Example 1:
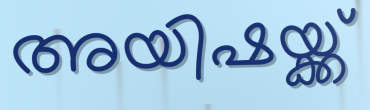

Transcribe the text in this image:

അയിഷയ്ക്ക്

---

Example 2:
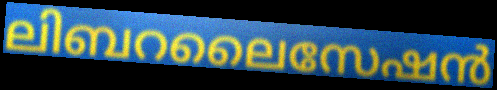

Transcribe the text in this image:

ലിബറലൈസേഷൻ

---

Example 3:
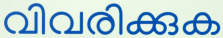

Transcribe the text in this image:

വിവരിക്കുക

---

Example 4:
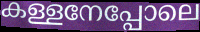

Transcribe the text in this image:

കള്ളനേപ്പോലെ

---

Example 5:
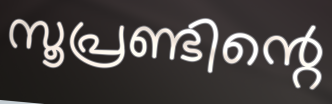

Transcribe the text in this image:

സൂപ്രണ്ടിന്റെ